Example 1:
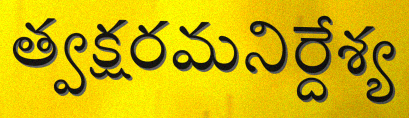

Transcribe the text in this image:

త్వక్షరమనిర్దేశ్య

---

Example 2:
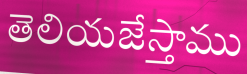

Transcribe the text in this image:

తెలియజేస్తాము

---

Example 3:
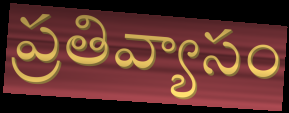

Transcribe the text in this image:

ప్రతివ్యాసం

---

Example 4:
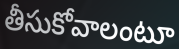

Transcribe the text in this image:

తీసుకోవాలంటూ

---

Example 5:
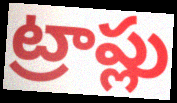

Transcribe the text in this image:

ట్రాప్లు